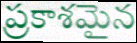
ప్రకాశమైన